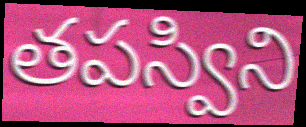
తపస్విని